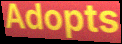
Adopts